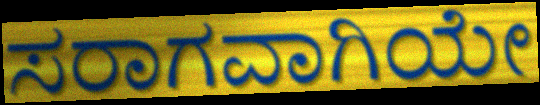
ಸರಾಗವಾಗಿಯೇ